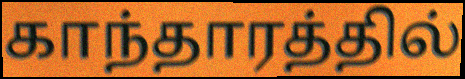
காந்தாரத்தில்